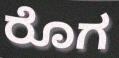
ರೊಗ